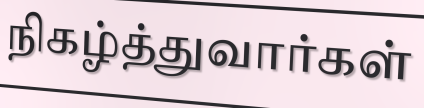
நிகழ்த்துவார்கள்